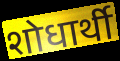
शोधार्थी